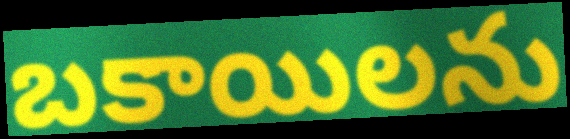
బకాయిలను